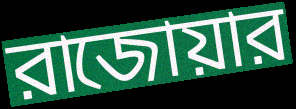
রাজোয়ার